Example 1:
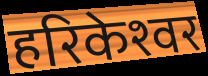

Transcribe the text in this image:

हरिकेश्वर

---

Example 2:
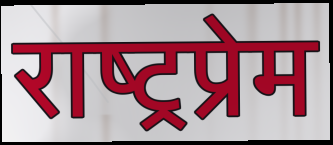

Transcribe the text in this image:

राष्ट्रप्रेम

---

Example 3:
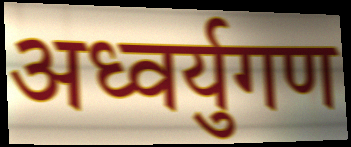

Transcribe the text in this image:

अध्वर्युगण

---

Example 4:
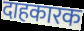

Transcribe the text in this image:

दाहकारक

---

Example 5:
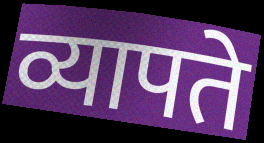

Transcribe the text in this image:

व्यापते